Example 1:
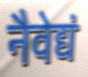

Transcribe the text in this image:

नैवेद्यं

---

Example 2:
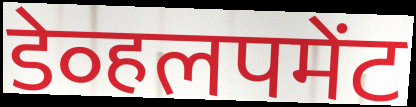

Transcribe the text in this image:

डेव्‍हलपमेंट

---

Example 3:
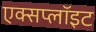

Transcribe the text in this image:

एक्सप्लॉइट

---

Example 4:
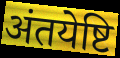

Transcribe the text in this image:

अंतयेष्टि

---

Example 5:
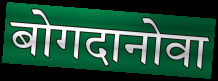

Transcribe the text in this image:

बोगदानोवा